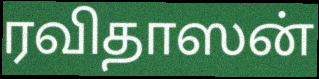
ரவிதாஸன்